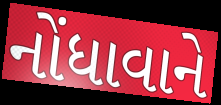
નોંધાવાને